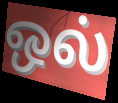
ஒல்